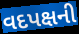
વદપક્ષની